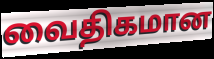
வைதிகமான